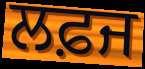
ਲਫ਼ਜ